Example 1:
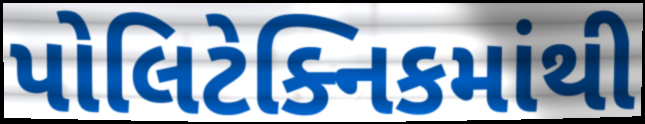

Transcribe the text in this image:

પોલિટેક્નિકમાંથી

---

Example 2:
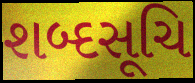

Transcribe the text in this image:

શબ્દસૂચિ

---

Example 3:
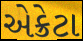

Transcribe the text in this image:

એક્રેટા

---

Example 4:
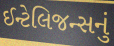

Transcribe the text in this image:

ઈન્ટેલિજન્સનું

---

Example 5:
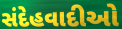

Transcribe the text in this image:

સંદેહવાદીઓ